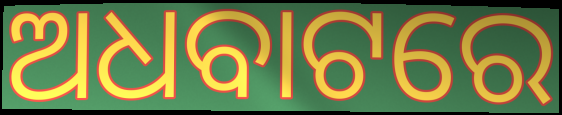
ଅଧବାଟରେ